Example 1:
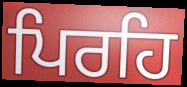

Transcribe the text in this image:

ਪਿਰਹਿ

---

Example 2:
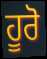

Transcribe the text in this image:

ਹੂਰੋ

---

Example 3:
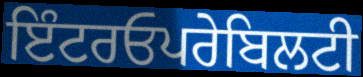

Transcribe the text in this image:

ਇੰਟਰਓਪਰੇਬਿਲਟੀ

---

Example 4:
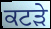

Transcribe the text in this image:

ਕਟੜੇ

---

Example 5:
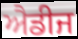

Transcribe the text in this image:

ਐਡੀਜ